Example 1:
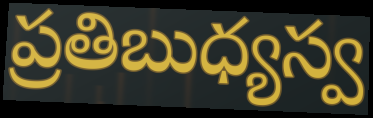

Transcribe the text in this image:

ప్రతిబుధ్యస్వ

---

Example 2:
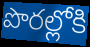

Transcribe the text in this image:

పొరల్లోకి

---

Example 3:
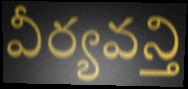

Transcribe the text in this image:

వీర్యవన్తి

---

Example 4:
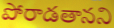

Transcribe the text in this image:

పోరాడతానని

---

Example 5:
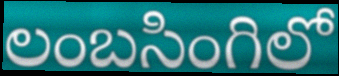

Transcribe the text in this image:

లంబసింగిలో